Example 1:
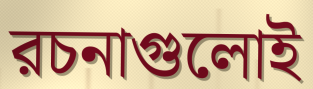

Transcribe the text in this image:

রচনাগুলোই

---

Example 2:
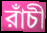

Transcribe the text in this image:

রাঁচী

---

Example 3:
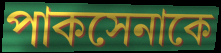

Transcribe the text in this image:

পাকসেনাকে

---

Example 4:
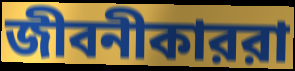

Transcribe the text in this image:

জীবনীকাররা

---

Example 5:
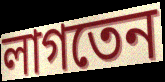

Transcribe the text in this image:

লাগতেন